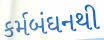
કર્મબંઘનથી